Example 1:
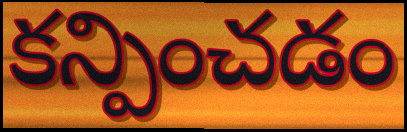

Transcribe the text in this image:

కన్పించడం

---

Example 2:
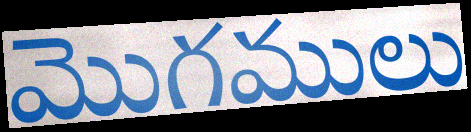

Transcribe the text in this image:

మొగములు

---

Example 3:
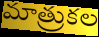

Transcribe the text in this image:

మాత్రుకల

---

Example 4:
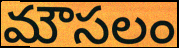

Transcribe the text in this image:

మౌసలం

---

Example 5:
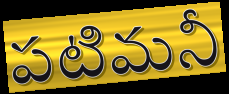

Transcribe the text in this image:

పటిమనీ